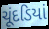
ચૂંદડિયાં